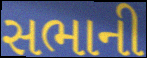
સભાની